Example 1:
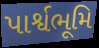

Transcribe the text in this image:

પાર્શ્વભૂમિ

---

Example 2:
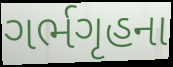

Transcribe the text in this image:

ગર્ભગૃહના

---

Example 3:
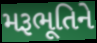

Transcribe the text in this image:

મરૂભૂતિને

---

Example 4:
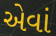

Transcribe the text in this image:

એવાં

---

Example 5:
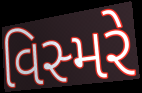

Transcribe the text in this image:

વિસ્મરે